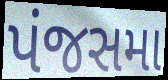
પંજસમા